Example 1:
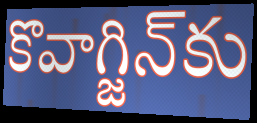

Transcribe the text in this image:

కొవాగ్జిన్‌కు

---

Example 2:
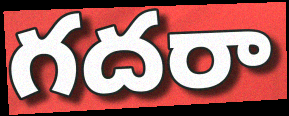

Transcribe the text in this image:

గదరా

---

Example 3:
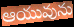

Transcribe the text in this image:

ఆయువును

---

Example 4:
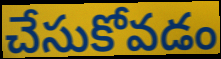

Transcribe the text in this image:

చేసుకోవడం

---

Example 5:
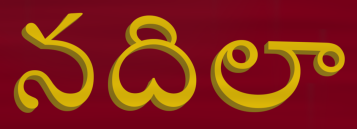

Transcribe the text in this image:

నదిలా